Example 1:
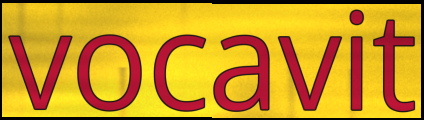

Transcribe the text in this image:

vocavit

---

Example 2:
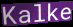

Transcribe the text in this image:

Kalke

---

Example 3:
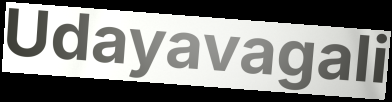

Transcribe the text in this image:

Udayavagali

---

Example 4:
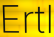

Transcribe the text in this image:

Ertl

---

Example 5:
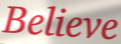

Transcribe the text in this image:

Believe